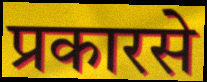
प्रकारसे